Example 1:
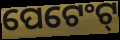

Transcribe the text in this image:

ପେଟେଂଟ୍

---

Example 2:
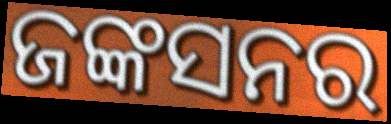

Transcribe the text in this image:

ଜଙ୍କସନର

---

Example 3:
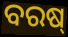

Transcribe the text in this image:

ବରଷ୍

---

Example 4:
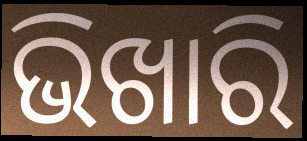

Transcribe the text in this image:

ଭିଖାରି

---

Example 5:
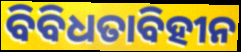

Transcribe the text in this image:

ବିବିଧତାବିହୀନ